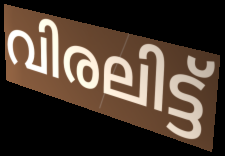
വിരലിട്ട്